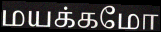
மயக்கமோ